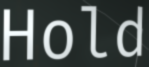
Hold